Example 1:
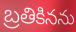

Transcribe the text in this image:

బ్రతికినను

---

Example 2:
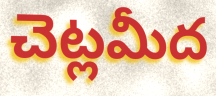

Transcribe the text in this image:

చెట్లమీద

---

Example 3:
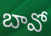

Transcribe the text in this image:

బావో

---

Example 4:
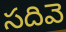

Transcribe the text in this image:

సదివె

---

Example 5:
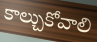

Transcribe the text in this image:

కాల్చుకోవాలి